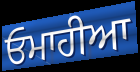
ਓਮਾਹੀਆ